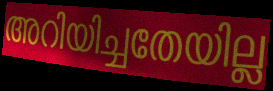
അറിയിച്ചതേയില്ല